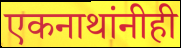
एकनाथांनीही